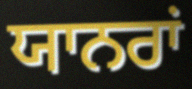
ਯਾਨਰਾਂ